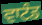
ਵਾਟੰਡ